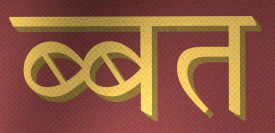
ब्बत